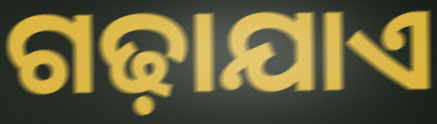
ଗଢ଼ାଯାଏ